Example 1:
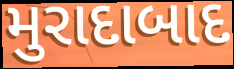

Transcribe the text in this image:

મુરાદાબાદ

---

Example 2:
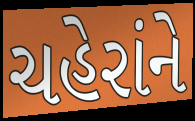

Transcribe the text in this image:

ચહેરાંને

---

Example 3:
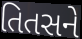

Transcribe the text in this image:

તિતસને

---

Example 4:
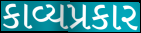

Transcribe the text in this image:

કાવ્યપ્રકાર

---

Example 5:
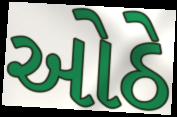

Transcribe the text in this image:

ઓઠે